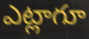
ఎట్లాగూ